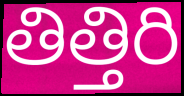
తిత్తిరి